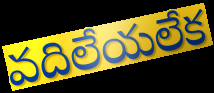
వదిలేయలేక